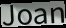
Joan